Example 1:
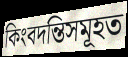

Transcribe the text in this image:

কিংবদন্তিসমূহত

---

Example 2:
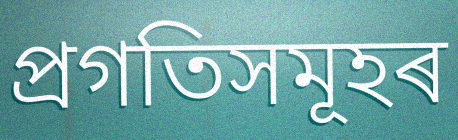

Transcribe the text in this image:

প্ৰগতিসমূহৰ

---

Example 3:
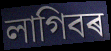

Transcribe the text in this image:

লাগিবৰ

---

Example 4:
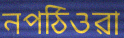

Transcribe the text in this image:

নপঠিওৱা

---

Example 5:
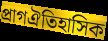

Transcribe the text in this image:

প্ৰাগঐতিহাসিক